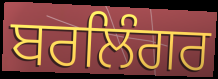
ਬਰਲਿੰਗਰ